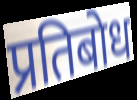
प्रतिबोध